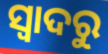
ସ୍ୱାଦରୁ